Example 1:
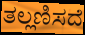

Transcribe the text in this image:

ತಲ್ಲಣಿಸದೆ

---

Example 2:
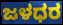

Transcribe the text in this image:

ಜಳಧರ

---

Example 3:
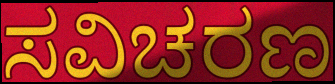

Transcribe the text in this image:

ಸವಿಚರಣ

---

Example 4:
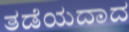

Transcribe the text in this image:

ತಡೆಯದಾದ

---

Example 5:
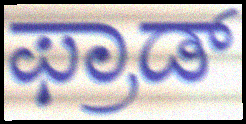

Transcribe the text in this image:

ಫ್ರಾಡ್